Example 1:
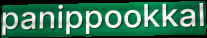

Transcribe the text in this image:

panippookkal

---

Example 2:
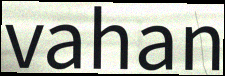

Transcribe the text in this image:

vahan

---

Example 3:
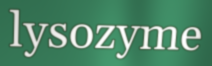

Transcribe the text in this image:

lysozyme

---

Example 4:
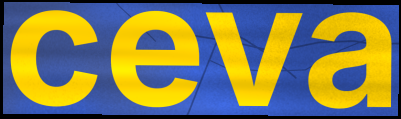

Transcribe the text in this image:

ceva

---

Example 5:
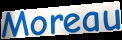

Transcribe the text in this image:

Moreau